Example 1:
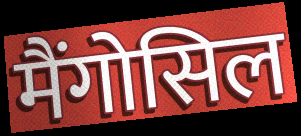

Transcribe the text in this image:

मैंगोसिल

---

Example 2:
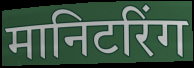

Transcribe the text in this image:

मानिटरिंग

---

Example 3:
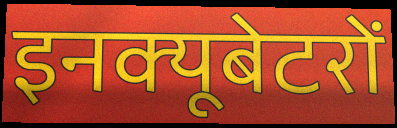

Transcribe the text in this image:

इनक्यूबेटरों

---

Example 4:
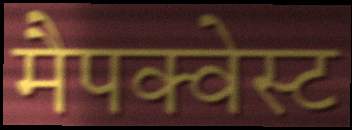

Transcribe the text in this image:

मैपक्वेस्ट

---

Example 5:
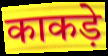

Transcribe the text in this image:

काकड़े